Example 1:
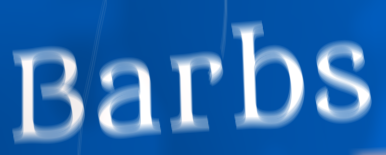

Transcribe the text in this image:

Barbs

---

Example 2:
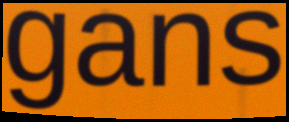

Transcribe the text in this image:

gans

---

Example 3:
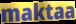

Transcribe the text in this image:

maktaa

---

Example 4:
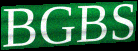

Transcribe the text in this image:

BGBS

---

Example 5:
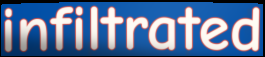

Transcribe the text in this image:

infiltrated